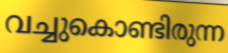
വച്ചുകൊണ്ടിരുന്ന